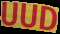
UUD